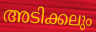
അടിക്കലും